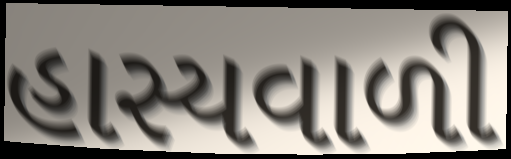
હાસ્યવાળી